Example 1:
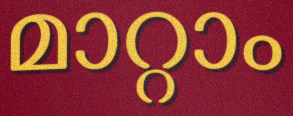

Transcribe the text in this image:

മാറ്റാം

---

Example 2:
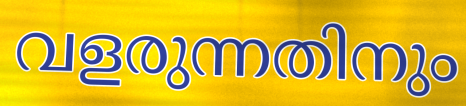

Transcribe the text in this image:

വളരുന്നതിനും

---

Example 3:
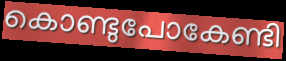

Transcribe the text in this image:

കൊണ്ടുപോകേണ്ടി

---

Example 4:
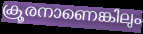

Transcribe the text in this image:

ക്രൂരനാണെങ്കിലും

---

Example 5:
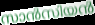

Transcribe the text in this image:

സാൻസിയൻ